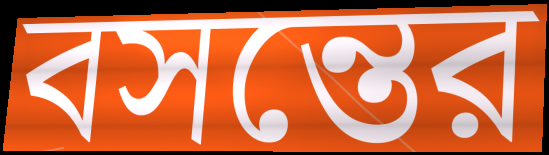
বসন্তের